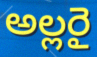
అల్లరై